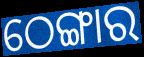
ଠେଙ୍ଗାର